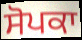
ਸੋਪਕਾ